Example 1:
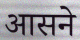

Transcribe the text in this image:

आसने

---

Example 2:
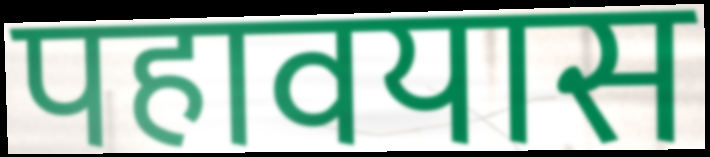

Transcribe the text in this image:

पहावयास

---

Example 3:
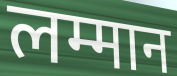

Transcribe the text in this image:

लम्मान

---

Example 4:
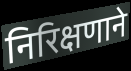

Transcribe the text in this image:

निरिक्षणाने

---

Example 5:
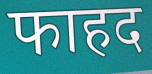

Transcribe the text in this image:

फाहद